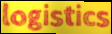
logistics